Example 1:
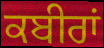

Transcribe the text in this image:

ਕਬੀਰਾਂ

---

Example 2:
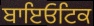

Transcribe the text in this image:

ਬਾਇਓਟਿਕ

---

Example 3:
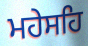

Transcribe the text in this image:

ਮਹੇਸਹਿ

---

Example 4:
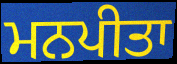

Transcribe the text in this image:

ਮਨਪੀਤਾ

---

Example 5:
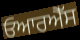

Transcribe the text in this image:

ਓਆਰਐੱਸ